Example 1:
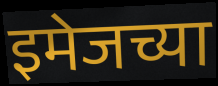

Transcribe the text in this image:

इमेजच्या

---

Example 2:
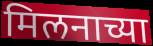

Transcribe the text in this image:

मिलनाच्या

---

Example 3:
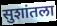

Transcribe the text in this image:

सुशांतला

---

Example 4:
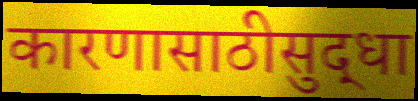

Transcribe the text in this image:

कारणासाठीसुद्धा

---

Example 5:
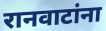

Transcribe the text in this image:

रानवाटांना